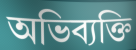
অভিব্যক্তি